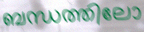
ബന്ധത്തിലോ